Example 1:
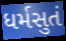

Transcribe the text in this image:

ધર્મસુતં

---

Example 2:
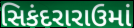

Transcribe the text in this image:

સિકંદરારાઉમાં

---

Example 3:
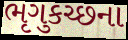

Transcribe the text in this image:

ભૃગુકચ્છના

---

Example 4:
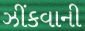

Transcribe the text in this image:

ઝીંકવાની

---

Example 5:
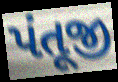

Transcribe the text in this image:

પંતૂજી